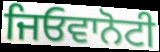
ਜਿਓਵਾਨੋਟੀ